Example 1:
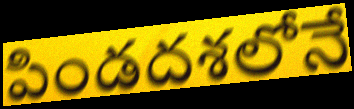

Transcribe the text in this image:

పిండదశలోనే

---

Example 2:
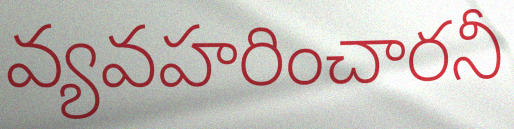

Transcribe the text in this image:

వ్యవహరించారనీ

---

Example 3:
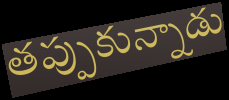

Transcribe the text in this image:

తప్పుకున్నాడు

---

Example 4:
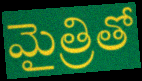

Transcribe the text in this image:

మైత్రితో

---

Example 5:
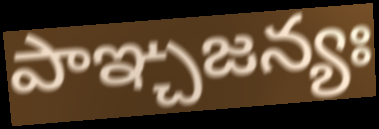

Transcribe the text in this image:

పాఞ్చజన్యః